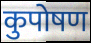
कुपोषण